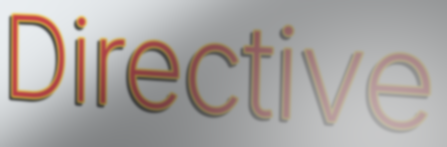
Directive